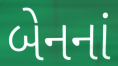
બેનનાં